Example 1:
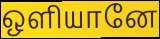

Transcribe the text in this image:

ஒளியானே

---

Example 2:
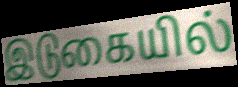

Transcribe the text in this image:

இடுகையில்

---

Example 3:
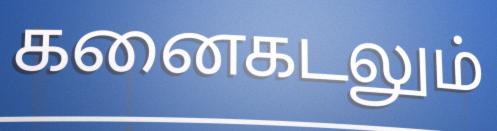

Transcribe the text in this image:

கனைகடலும்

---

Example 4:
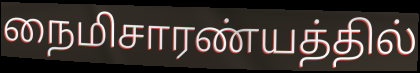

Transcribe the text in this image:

நைமிசாரண்யத்தில்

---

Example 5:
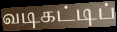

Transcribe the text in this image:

வடிகட்டிப்